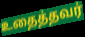
உதைத்தவர்